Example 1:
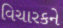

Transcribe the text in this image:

વિચારકને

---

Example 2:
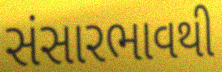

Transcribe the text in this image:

સંસારભાવથી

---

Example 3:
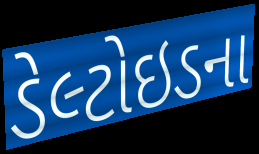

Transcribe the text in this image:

ડેલ્ટોઇડના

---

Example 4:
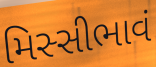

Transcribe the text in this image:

મિસ્સીભાવં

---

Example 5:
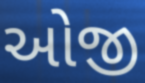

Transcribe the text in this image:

ઓજી